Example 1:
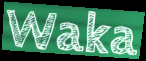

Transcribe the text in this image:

Waka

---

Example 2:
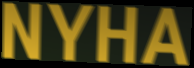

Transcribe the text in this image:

NYHA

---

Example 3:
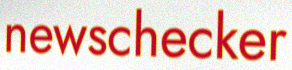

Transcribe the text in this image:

newschecker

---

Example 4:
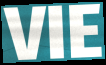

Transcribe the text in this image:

VIE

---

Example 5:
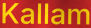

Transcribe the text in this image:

Kallam